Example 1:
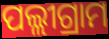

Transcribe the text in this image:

ପଲ୍ଲୀଗ୍ରାମ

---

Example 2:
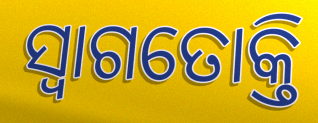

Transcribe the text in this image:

ସ୍ଵାଗତୋକ୍ତି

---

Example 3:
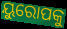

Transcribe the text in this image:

ୟୁରୋପକୁ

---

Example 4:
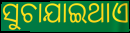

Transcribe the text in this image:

ସୁଚାଯାଇଥାଏ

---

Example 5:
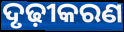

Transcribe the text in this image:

ଦୃଢ଼ୀକରଣ